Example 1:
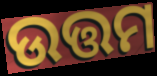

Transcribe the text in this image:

ଉତ୍ତମ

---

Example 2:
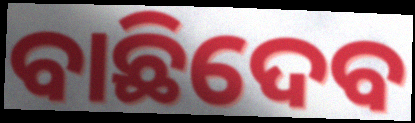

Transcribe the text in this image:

ବାଛିଦେବ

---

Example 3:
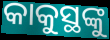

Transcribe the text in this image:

କାକୁସ୍ଥଙ୍କୁ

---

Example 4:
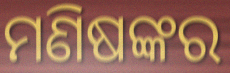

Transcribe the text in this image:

ମଣିଷଙ୍କର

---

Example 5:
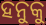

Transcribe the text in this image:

ହନୁକୁ